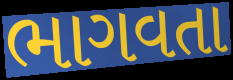
ભાગવતા